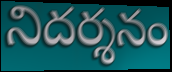
నిదర్శనం